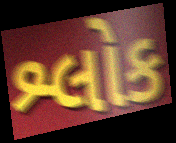
શ્લોક